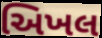
અિખલ